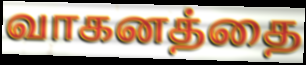
வாகனத்தை